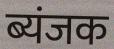
ब्यंजक